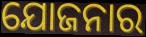
ଯୋଜନାର